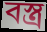
বস্ত্র